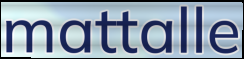
mattalle